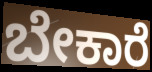
ಬೇಕಾರೆ